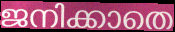
ജനിക്കാതെ